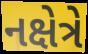
નક્ષેત્રે